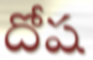
దోష